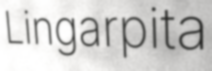
Lingarpita